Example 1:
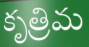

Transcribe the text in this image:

కృత్రిమ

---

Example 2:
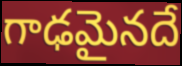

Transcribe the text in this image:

గాఢమైనదే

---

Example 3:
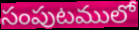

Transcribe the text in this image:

సంపుటములో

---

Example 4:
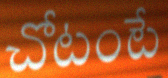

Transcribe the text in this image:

చోటంటే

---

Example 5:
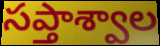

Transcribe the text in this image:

సప్తాశ్వాల